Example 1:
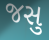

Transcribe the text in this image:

જસુ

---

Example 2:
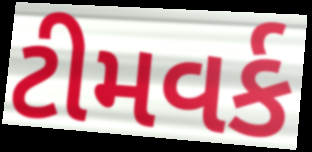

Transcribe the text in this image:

ટીમવર્ક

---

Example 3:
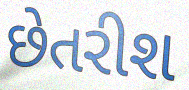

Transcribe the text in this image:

છેતરીશ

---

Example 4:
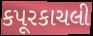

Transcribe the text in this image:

કપૂરકાચલી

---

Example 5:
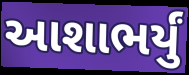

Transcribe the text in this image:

આશાભર્યું